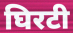
घिरटी